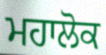
ਮਹਾਲੋਕ